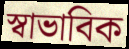
স্বাভাবিক